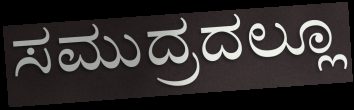
ಸಮುದ್ರದಲ್ಲೂ